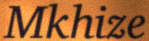
Mkhize